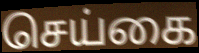
செய்கை